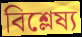
বিশ্লেষ্য